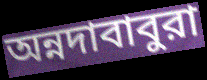
অন্নদাবাবুরা